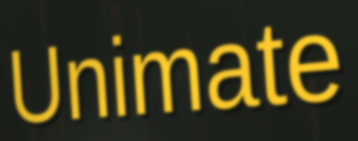
Unimate